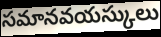
సమానవయస్కులు